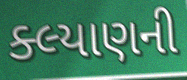
ક્લ્યાણની